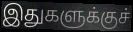
இதுகளுக்குச்